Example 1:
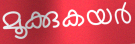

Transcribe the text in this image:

മൂക്കുകയർ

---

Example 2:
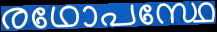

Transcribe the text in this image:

രഥോപസ്ഥേ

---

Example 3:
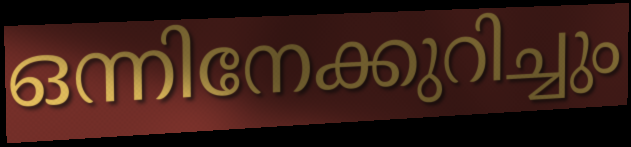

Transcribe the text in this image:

ഒന്നിനേക്കുറിച്ചും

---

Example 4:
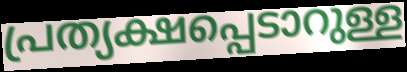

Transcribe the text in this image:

പ്രത്യക്ഷപ്പെടാറുള്ള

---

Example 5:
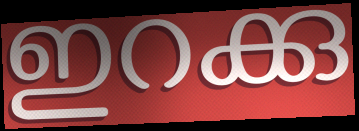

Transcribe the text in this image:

ഇറക്കു